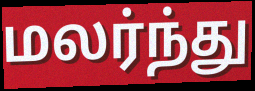
மலர்ந்து